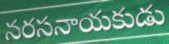
నరసనాయకుడు